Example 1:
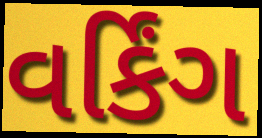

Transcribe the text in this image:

વર્કિંગ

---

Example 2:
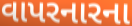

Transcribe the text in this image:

વાપરનારના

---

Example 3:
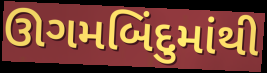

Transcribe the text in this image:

ઊગમબિંદુમાંથી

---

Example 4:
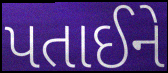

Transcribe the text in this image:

પતાઈને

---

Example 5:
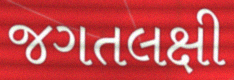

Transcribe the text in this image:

જગતલક્ષી